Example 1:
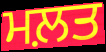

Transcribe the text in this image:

ਮਲ਼ਤ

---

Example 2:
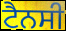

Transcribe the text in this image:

ਟੈਨਸੀ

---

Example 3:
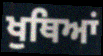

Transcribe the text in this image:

ਖੁਥਿਆਂ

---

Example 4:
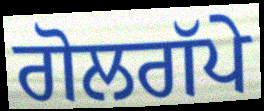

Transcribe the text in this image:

ਗੋਲਗੱਪੇ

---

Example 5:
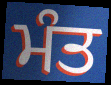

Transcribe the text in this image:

ਮੰਤ